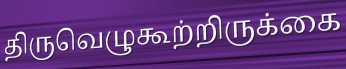
திருவெழுகூற்றிருக்கை